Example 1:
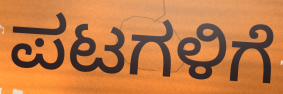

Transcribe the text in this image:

ಪಟಗಳಿಗೆ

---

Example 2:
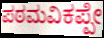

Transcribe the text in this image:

ಪಠಮವಿಕಪ್ಪೇ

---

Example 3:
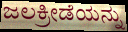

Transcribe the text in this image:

ಜಲಕ್ರೀಡೆಯನ್ನು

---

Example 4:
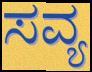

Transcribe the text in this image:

ಸವ್ಯ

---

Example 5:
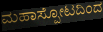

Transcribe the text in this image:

ಮಹಾಸ್ಪೋಟದಿಂದ